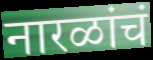
नारळांचं